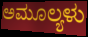
ಅಮೂಲ್ಯಳು